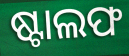
ଷ୍ଟାଲଫ